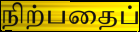
நிற்பதைப்